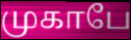
முகாபே